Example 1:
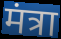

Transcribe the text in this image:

मंत्रा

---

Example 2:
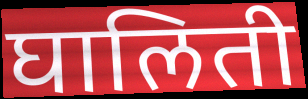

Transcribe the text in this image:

घालिती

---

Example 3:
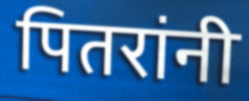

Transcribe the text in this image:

पितरांनी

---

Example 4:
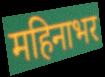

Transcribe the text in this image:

महिनाभर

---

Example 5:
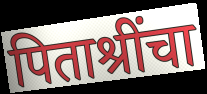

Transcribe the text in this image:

पिताश्रींचा